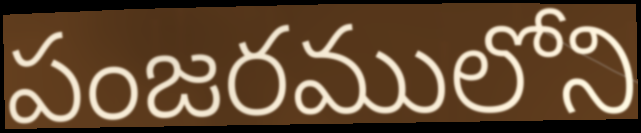
పంజరములోని